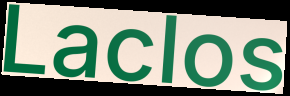
Laclos